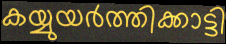
കയ്യുയർത്തിക്കാട്ടി